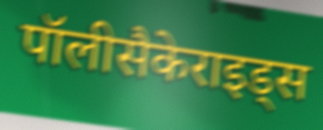
पॉलीसैकेराइड्स